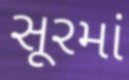
સૂરમાં